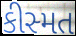
કીસ્મત